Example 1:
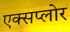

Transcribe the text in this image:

एक्‍सप्लोर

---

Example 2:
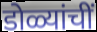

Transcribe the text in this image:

डोळ्यांचीं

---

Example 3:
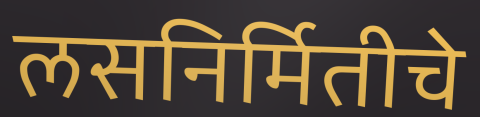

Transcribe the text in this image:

लसनिर्मितीचे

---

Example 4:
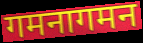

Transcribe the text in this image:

गमनागमन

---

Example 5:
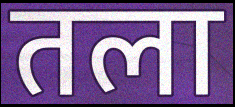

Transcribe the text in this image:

तला